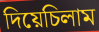
দিয়েচিলাম